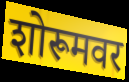
शोरूमवर